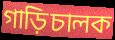
গাড়িচালক